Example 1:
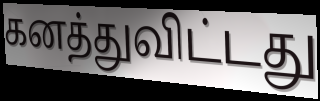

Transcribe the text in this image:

கனத்துவிட்டது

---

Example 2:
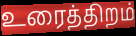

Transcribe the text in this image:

உரைத்திறம்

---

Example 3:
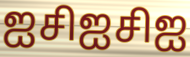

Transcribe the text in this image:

ஐசிஐசிஐ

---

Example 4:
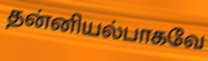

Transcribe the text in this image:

தன்னியல்பாகவே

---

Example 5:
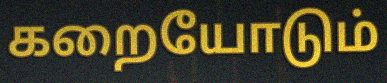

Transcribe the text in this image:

கறையோடும்